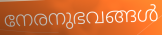
നേരനുഭവങ്ങൾ